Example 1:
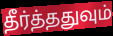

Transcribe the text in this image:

தீர்த்ததுவும்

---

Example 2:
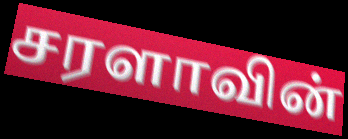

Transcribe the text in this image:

சரளாவின்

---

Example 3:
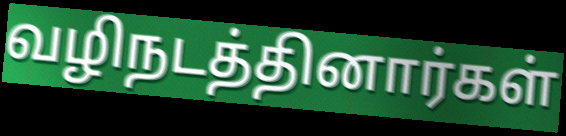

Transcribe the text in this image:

வழிநடத்தினார்கள்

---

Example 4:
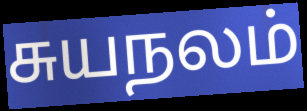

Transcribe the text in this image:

சுயநலம்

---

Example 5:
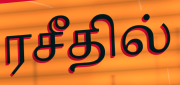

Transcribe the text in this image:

ரசீதில்